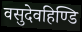
वसुदेवहिण्डि